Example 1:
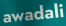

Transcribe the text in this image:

awadali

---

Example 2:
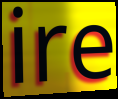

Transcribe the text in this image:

ire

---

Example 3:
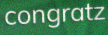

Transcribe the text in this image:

congratz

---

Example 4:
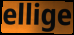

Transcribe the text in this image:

ellige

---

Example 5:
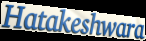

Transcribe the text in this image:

Hatakeshwara